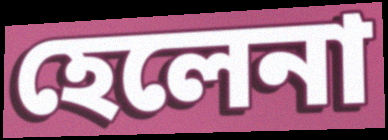
হেলেনা